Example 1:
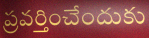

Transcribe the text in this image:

ప్రవర్తించేందుకు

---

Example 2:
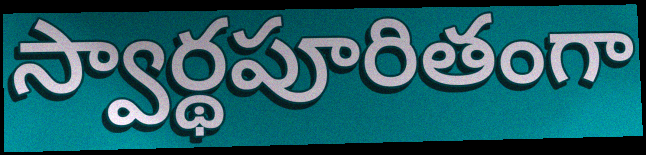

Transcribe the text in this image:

స్వార్థపూరితంగా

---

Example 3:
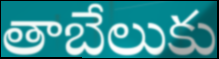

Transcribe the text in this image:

తాబేలుకు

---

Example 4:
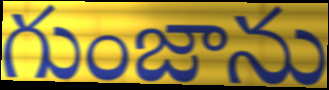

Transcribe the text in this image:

గుంజాను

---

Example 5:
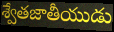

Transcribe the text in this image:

శ్వేతజాతీయుడు